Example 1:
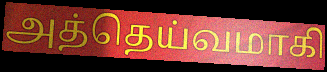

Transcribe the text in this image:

அத்தெய்வமாகி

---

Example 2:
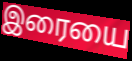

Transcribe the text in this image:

இரையை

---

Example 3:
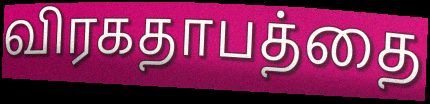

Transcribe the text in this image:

விரகதாபத்தை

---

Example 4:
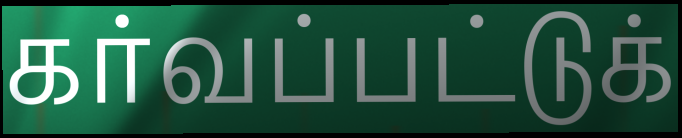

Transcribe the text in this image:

கர்வப்பட்டுக்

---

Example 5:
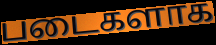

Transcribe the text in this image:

படைகளாக